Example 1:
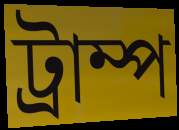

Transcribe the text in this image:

ট্রাম্প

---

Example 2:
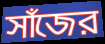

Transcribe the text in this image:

সাঁজের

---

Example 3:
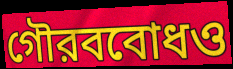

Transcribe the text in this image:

গৌরববোধও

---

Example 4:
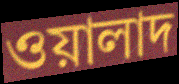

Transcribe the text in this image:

ওয়ালাদ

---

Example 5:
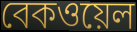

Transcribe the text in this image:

বেকওয়েল